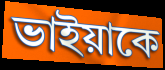
ভাইয়াকে